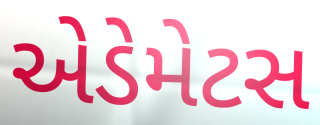
એડેમેટસ